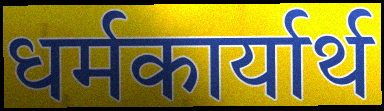
धर्मकार्यार्थ